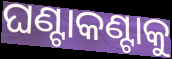
ଘଣ୍ଟାକଣ୍ଟାକୁ